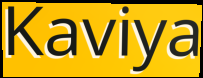
Kaviya